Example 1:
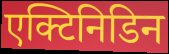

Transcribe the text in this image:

एक्टिनिडिन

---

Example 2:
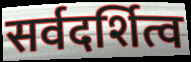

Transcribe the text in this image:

सर्वदर्शित्व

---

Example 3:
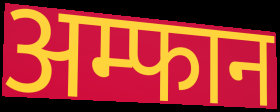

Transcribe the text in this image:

अम्‍फान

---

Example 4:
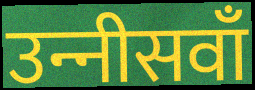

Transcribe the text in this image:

उन्‍नीसवाँ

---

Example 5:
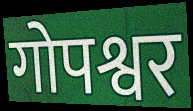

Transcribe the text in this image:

गोपश्वर